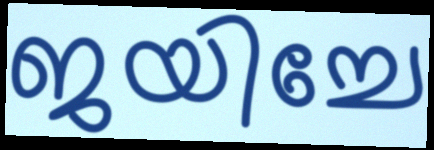
ജയിച്ചേ